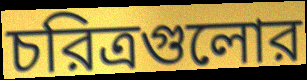
চরিত্রগুলোর